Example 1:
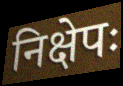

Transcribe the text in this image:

निक्षेपः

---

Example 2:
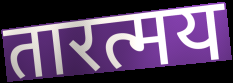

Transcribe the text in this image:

तारत्मय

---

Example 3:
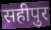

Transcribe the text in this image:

सहीपुर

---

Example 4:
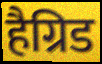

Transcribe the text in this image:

हैग्रिड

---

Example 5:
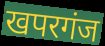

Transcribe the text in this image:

खपरगंज